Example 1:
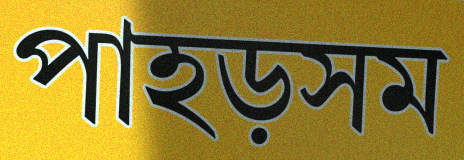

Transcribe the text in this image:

পাহড়সম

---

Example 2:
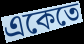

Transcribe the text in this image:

একেতে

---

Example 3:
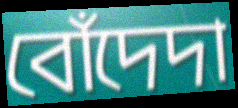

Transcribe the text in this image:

বোঁদেদা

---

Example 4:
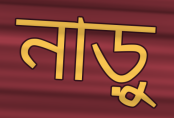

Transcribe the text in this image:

নাড়ু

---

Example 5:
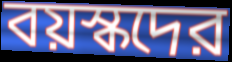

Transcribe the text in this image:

বয়স্কদের